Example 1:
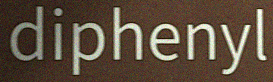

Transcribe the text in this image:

diphenyl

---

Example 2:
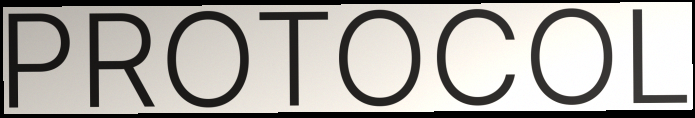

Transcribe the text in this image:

PROTOCOL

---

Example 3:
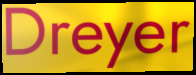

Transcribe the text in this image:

Dreyer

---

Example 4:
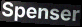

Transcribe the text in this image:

Spenser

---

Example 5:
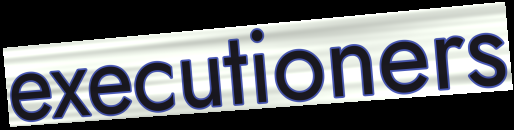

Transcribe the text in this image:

executioners